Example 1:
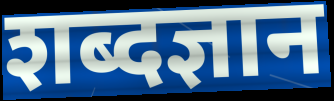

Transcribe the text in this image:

शब्दज्ञान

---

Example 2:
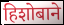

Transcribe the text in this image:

हिशोबाने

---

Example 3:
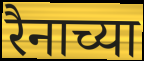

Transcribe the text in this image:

रैनाच्या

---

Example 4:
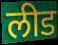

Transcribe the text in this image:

लीड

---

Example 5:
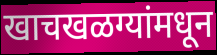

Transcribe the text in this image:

खाचखळग्यांमधून